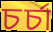
চৰ্চা